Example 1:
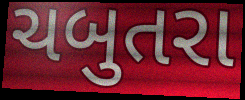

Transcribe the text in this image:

ચબુતરા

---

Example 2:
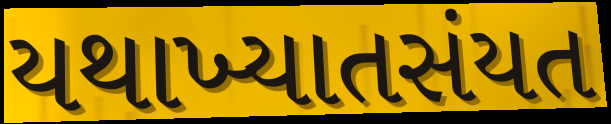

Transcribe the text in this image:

યથાખ્યાતસંયત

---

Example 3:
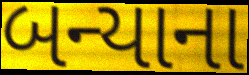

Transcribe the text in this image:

બન્યાના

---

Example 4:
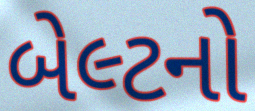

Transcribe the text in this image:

બેલ્ટનો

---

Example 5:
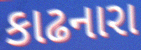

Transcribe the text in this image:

કાઢનારા